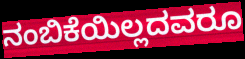
ನಂಬಿಕೆಯಿಲ್ಲದವರೂ